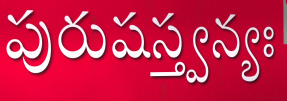
పురుషస్త్వన్యః